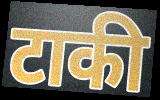
टाकी